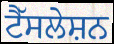
ਟੈੱਸਲੇਸ਼ਨ